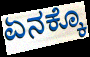
ಏನಕ್ಕೊ